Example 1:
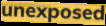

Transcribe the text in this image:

unexposed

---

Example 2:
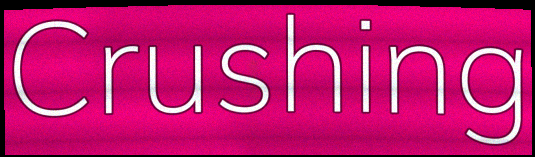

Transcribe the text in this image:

Crushing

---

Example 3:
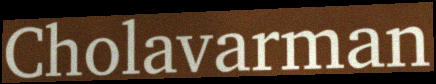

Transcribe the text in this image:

Cholavarman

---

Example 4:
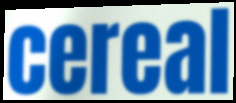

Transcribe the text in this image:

cereal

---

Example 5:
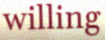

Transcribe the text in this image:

willing